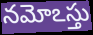
నమోఽస్తు